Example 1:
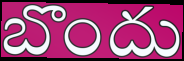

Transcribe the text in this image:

బొందు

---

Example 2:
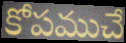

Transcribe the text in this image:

కోపముచే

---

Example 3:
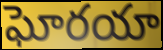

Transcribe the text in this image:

ఘోరయా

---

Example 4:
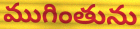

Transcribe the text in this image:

ముగింతును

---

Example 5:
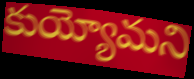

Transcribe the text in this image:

కుయ్యోమని